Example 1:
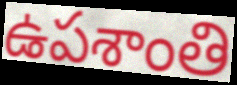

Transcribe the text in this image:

ఉపశాంతి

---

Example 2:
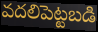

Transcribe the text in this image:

వదలిపెట్టబడి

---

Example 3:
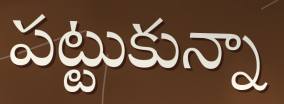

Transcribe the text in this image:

పట్టుకున్నా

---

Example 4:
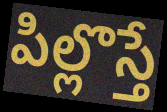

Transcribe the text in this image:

పిల్లొస్తే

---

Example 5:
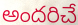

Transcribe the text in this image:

అందరిచే